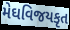
મેઘવિજયકૃત